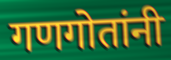
गणगोतांनी